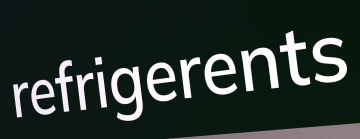
refrigerents